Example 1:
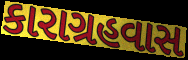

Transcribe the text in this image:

કારાગ્રહવાસ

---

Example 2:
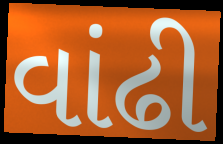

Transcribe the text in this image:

વાંઢી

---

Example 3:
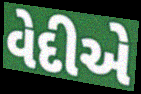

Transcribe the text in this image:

વેદીએ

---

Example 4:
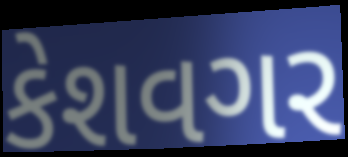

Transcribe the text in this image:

કેશવગર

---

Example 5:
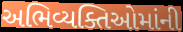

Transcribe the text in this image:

અભિવ્યક્તિઓમાંની